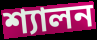
শ্যালন